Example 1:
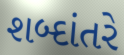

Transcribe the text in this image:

શબ્દાંતરે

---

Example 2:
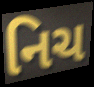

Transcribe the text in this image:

નિચ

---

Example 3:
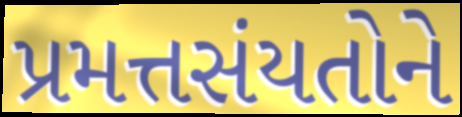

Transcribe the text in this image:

પ્રમત્તસંયતોને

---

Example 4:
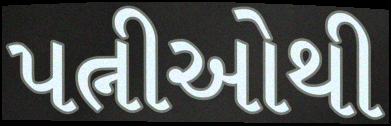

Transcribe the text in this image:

પત્નીઓથી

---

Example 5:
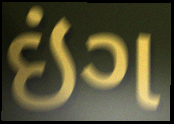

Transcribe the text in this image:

ઇંગ